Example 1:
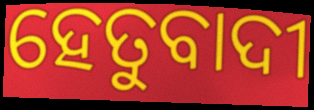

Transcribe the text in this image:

ହେତୁବାଦୀ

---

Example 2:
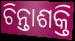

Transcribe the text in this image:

ଚିନ୍ତାଶକ୍ତି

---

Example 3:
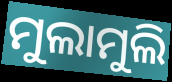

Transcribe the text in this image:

ମୁଲାମୁଲି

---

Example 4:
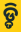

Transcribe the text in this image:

ଡ଼୍ଡି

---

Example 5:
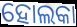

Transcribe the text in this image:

ହୋଲକା